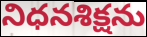
నిధనశిక్షను